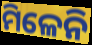
ମିଳେନି